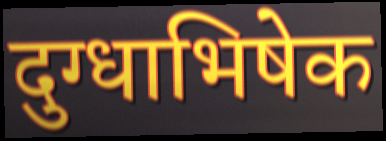
दुग्धाभिषेक